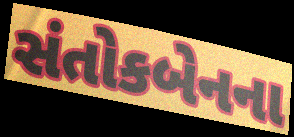
સંતોકબેનના